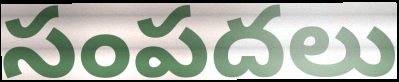
సంపదలు